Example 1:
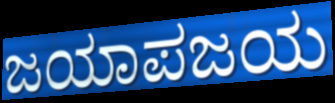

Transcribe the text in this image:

ಜಯಾಪಜಯ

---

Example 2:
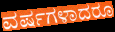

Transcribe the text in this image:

ವರ್ಷಗಳಾದರೂ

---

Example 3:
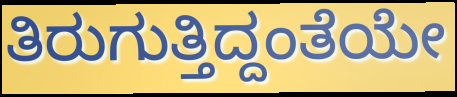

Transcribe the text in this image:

ತಿರುಗುತ್ತಿದ್ದಂತೆಯೇ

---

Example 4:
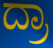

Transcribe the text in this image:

ದ್ರಾ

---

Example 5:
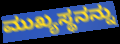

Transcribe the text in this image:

ಮುಖ್ಯಸ್ಥನನ್ನು